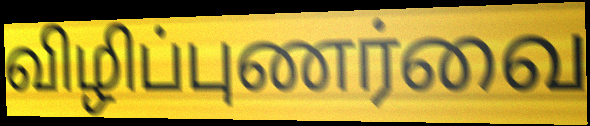
விழிப்புணர்வை